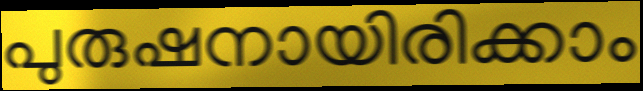
പുരുഷനായിരിക്കാം